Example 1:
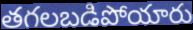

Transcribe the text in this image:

తగలబడిపోయారు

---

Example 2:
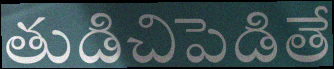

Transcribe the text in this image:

తుడిచిపెడితే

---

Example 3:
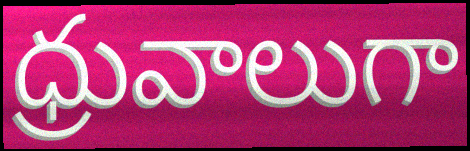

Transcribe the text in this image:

ధ్రువాలుగా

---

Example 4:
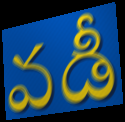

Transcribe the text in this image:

వడీ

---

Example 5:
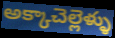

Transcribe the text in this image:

అక్కాచెల్లెళ్ళు